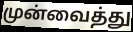
முன்வைத்து